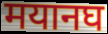
मयानघ